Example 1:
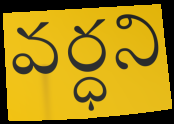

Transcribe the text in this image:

వర్ధని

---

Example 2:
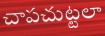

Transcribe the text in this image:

చాపచుట్టలా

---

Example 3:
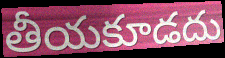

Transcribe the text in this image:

తీయకూడదు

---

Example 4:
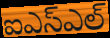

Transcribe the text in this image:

ఐఎస్ఎల్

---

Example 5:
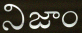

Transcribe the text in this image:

నిజాం